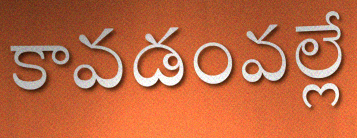
కావడంవల్లే